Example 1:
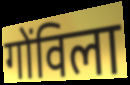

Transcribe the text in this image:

गोंविला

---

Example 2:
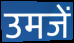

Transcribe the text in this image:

उमजें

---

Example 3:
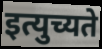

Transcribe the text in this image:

इत्युच्यते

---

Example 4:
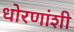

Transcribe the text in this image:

धोरणांशी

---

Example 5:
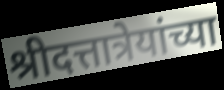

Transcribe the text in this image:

श्रीदत्तात्रेयांच्या